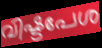
വിഷ്ടപേശ